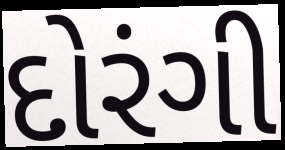
દોરંગી